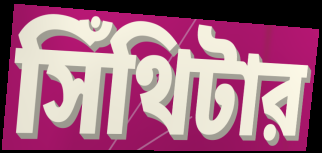
সিঁথিটার